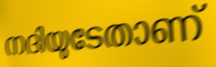
നദിയുടേതാണ്